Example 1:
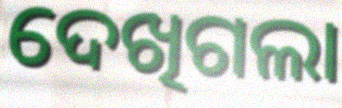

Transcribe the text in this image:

ଦେଖିଗଲା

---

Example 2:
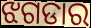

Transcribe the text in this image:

ଝଗଡାର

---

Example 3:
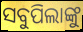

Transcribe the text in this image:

ସବୁପିଲାଙ୍କୁ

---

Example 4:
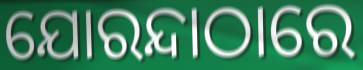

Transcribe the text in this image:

ଯୋରନ୍ଦାଠାରେ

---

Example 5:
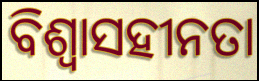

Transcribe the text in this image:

ବିଶ୍ୱାସହୀନତା